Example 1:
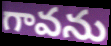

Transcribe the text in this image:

గావను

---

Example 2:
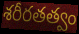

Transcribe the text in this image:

శరీరతత్వం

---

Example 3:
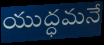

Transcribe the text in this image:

యుద్ధమనే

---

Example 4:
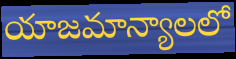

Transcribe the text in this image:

యాజమాన్యాలలో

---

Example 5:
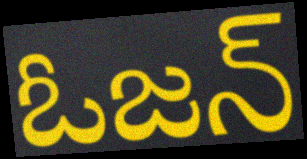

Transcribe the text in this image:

ఓజన్